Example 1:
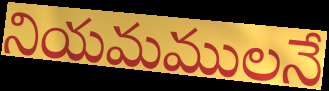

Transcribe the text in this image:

నియమములనే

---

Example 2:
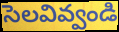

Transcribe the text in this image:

సెలవివ్వండి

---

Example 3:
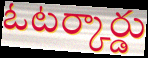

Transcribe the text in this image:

ఓటర్కార్డు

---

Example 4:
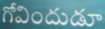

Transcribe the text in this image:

గోవిందుడూ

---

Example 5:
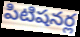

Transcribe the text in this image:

పిటిషనర్ల